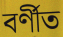
বর্ণীত